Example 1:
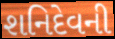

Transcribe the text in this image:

શનિદેવની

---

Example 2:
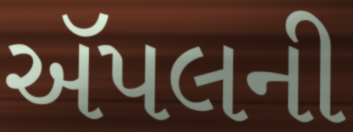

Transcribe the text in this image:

ઍપલની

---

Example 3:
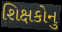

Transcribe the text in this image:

શિક્ષકોનુ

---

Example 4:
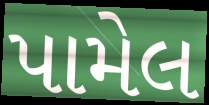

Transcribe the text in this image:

પામેલ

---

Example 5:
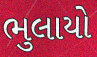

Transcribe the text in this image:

ભુલાયો